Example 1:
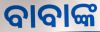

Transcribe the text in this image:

ବାବାଙ୍କ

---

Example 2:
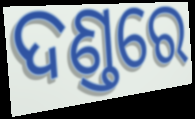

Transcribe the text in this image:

ଦଣ୍ଡରେ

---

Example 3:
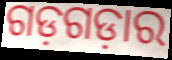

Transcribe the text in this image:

ଗଡ଼ଗଡ଼ାର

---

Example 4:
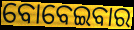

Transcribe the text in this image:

ବୋବେଇବାର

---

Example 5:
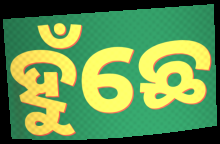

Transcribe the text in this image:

ହୁଁଛେ